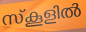
സ്‌കൂളിൽ